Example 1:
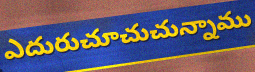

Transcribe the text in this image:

ఎదురుచూచుచున్నాము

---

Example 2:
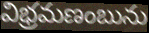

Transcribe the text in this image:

విభ్రమణంబును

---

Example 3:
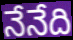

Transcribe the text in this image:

నేనేది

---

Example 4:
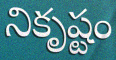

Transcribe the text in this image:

నికృష్టం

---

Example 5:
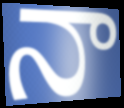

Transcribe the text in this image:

నా